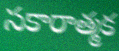
సకారాత్మక